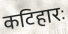
कटिहारः